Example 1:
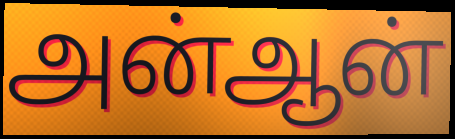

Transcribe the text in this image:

அன்ஆன்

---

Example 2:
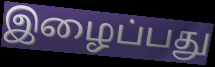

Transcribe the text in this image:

இழைப்பது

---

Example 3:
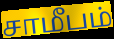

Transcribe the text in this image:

சாமீபம்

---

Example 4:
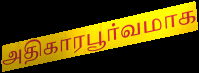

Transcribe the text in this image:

அதிகாரபூர்வமாக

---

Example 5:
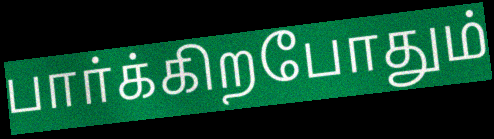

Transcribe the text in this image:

பார்க்கிறபோதும்